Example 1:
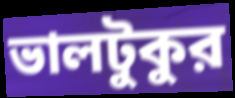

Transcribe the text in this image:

ভালটুকুর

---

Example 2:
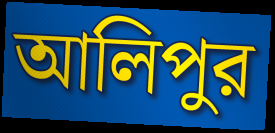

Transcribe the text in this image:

আলিপুর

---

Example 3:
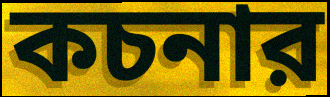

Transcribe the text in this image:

কচনার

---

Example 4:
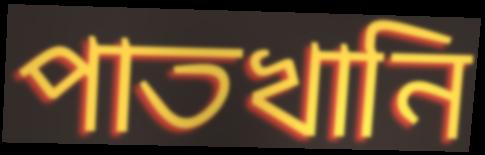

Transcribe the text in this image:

পাতখানি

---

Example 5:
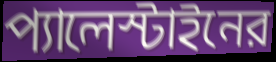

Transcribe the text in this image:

প্যালেস্টাইনের